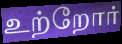
உற்றோர்